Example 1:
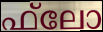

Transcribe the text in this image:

ഫ്‌ലോ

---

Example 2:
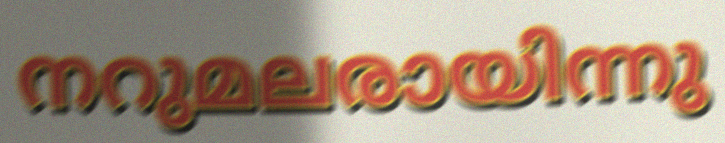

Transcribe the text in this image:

നറുമലരായിന്നു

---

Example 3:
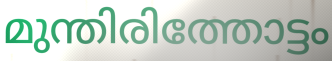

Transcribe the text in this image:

മുന്തിരിത്തോട്ടം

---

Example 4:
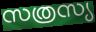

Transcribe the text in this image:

സത്രസ്യ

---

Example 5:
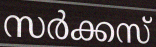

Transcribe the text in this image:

സർക്കസ്